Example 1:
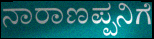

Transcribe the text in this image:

ನಾರಾಣಪ್ಪನಿಗೆ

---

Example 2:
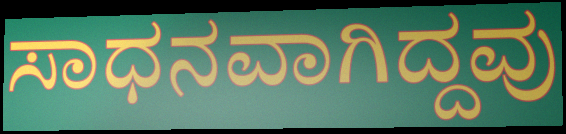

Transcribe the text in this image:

ಸಾಧನವಾಗಿದ್ದವು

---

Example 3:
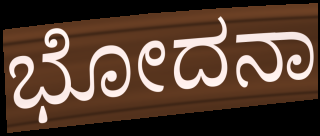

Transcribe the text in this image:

ಭೋದನಾ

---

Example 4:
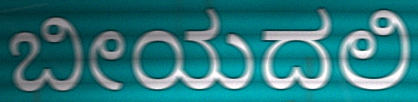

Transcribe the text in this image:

ಬೀಯದಲಿ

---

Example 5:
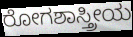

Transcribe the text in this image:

ರೋಗಶಾಸ್ತ್ರೀಯ